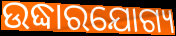
ଉଦ୍ଧାରଯୋଗ୍ୟ